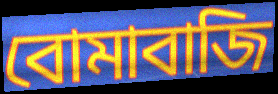
বোমাবাজি